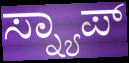
ಸ್ನ್ಯಾಪ್